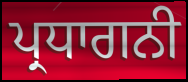
ਪ੍ਰਧਾਗਨੀ